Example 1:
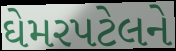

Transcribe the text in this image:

ઘેમરપટેલને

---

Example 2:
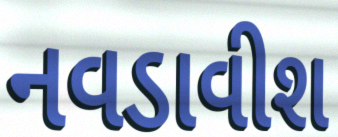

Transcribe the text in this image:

નવડાવીશ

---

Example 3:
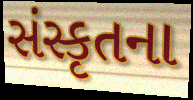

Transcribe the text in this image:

સંસ્કૃતના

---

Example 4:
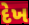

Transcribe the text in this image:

દેખ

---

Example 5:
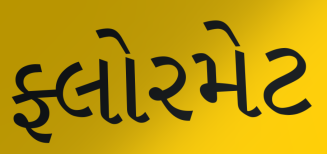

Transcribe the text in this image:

ફ્લોરમેટ